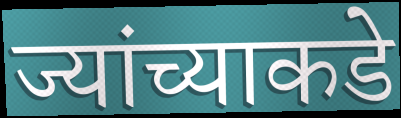
ज्यांच्याकडे